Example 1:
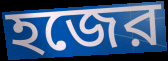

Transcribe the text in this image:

হজের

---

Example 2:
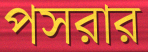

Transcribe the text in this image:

পসরার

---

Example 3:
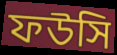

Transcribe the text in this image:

ফউসি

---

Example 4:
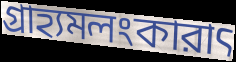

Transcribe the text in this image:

গ্রাহ্যমলংকারাৎ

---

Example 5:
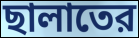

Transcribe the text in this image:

ছালাতের